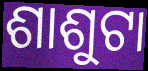
ଶାଶୁଟା